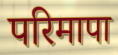
परिमापा